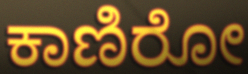
ಕಾಣಿರೋ